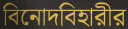
বিনোদবিহারীর